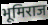
भूमिराज